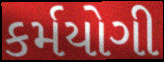
કર્મયોગી